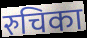
रुचिका